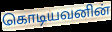
கொடியவனின்